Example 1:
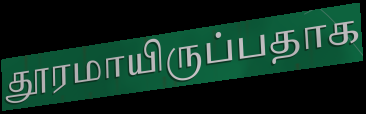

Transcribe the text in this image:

தூரமாயிருப்பதாக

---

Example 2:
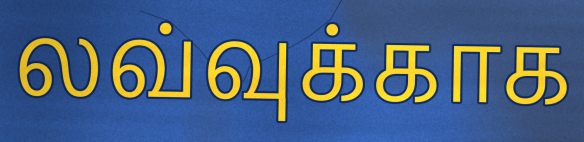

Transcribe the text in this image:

லவ்வுக்காக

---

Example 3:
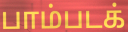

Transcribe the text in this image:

பாம்படக்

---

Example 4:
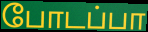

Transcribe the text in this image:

போடப்பா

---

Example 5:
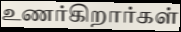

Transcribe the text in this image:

உணர்கிறார்கள்